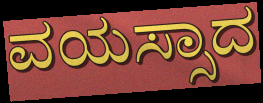
ವಯಸ್ಸಾದ